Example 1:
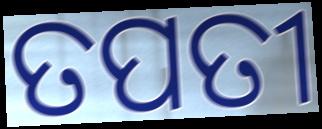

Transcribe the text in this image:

ତପତୀ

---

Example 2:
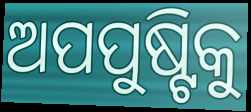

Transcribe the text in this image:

ଅପପୁଷ୍ଟିକୁ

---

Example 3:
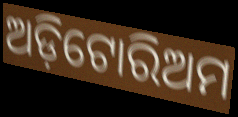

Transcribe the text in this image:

ଅଡ଼ିଟୋରିଅମ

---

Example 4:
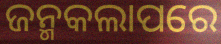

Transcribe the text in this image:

ଜନ୍ମକଲାପରେ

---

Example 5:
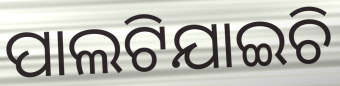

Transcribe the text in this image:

ପାଲଟିଯାଇଚି